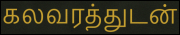
கலவரத்துடன்